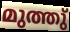
മുത്തു്